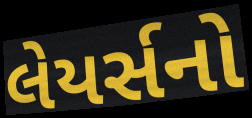
લેયર્સનો